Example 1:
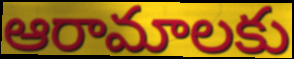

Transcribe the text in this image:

ఆరామాలకు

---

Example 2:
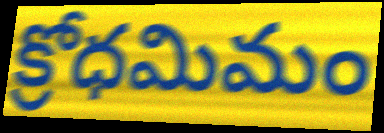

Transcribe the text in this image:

క్రోధమిమం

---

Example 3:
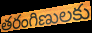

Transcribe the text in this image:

తరంగిణులకు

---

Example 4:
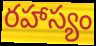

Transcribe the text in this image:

రహాస్యం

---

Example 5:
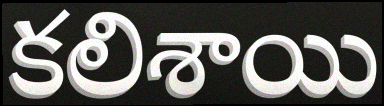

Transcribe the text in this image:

కలిశాయి